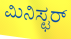
ಮಿನಿಸ್ಟರ್